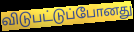
விடுபட்டுப்போனது